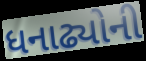
ધનાઢ્યોની